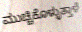
ಮುಚ್ಚಿಕೊಳ್ಳುತ್ತಾಳೆ